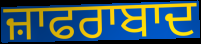
ਜ਼ਾਫਰਾਬਾਦ